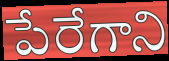
పేరేగాని